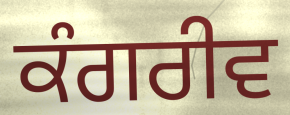
ਕੰਗਰੀਵ